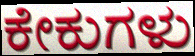
ಕೇಕುಗಳು